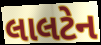
લાલટેન